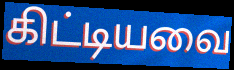
கிட்டியவை